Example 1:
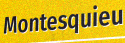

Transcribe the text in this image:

Montesquieu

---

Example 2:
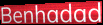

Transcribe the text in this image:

Benhadad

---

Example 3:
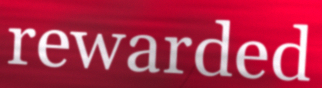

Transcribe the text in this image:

rewarded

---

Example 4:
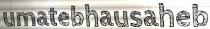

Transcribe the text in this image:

umatebhausaheb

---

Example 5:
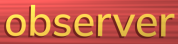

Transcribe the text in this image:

observer